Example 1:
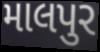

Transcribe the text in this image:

માલપુર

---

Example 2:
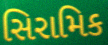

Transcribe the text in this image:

સિરામિક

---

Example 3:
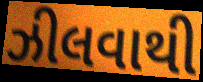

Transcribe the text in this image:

ઝીલવાથી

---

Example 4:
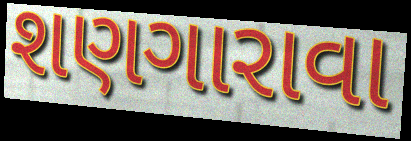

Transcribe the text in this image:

શણગારાવા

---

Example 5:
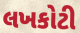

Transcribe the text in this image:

લખકોટી